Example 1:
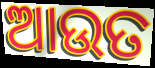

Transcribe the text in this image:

ଆଉତ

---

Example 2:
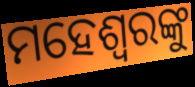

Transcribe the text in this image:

ମହେଶ୍ଵରଙ୍କୁ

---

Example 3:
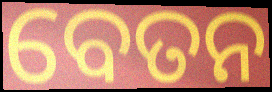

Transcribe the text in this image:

ବେତନ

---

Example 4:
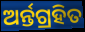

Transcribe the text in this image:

ଅର୍ନ୍ତଗ୍ରହିତ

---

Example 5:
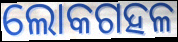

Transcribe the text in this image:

ଲୋକଗହଳ